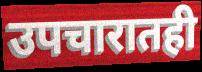
उपचारातही